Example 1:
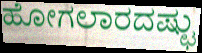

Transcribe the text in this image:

ಹೋಗಲಾರದಷ್ಟು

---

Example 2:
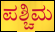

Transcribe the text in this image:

ಪಶ್ಚಿಮ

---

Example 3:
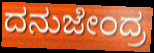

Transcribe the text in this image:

ದನುಜೇಂದ್ರ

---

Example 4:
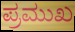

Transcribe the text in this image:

ಪ್ರಮುಖ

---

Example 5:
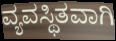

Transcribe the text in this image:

ವ್ಯವಸ್ಥಿತವಾಗಿ